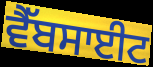
ਵੈੱਬਸਾਈਟ